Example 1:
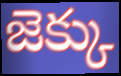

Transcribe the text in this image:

జెక్కు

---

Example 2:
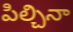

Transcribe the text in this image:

పిల్చినా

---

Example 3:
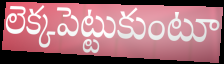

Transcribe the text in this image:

లెక్కపెట్టుకుంటూ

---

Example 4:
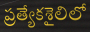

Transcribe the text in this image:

ప్రత్యేకశైలిలో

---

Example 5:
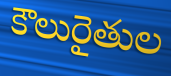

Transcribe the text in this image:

కౌలురైతుల